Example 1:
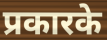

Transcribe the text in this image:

प्रकारके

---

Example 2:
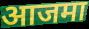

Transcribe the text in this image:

आजमा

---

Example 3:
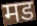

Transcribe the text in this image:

मड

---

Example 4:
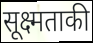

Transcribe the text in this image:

सूक्ष्मताकी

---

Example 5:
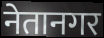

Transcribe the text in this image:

नेतानगर